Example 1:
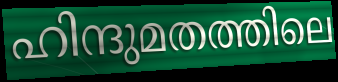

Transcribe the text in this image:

ഹിന്ദുമതത്തിലെ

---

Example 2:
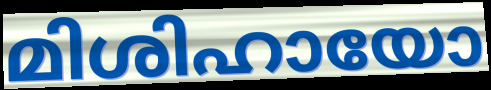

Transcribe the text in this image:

മിശിഹായോ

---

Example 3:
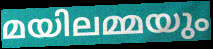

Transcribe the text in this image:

മയിലമ്മയും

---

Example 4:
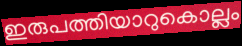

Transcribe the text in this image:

ഇരുപത്തിയാറുകൊല്ലം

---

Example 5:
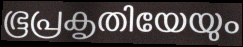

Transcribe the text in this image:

ഭൂപ്രകൃതിയേയും